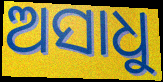
ଅସାଧୁ